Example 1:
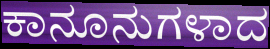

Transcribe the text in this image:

ಕಾನೂನುಗಳಾದ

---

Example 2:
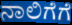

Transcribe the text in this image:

ನಾಲಿಗೆಗೆ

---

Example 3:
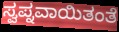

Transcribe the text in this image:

ಸ್ವಪ್ನವಾಯಿತಂತೆ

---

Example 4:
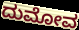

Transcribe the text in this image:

ದುಮೋವ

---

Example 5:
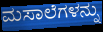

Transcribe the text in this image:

ಮಸಾಲೆಗಳನ್ನು